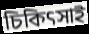
চিকিৎসাই